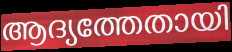
ആദ്യത്തേതായി